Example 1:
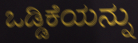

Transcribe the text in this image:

ಒಡ್ಡಿಕೆಯನ್ನು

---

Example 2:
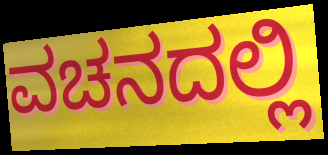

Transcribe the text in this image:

ವಚನದಲ್ಲಿ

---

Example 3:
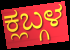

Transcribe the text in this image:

ಕ್ಲಬ್ಗಳ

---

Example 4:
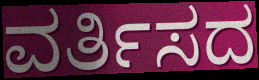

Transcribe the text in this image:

ವರ್ತಿಸದ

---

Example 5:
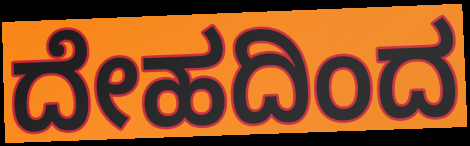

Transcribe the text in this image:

ದೇಹದಿಂದ